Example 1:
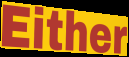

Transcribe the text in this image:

Either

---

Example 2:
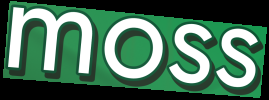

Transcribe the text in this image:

moss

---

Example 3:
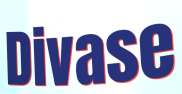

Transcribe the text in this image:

Divase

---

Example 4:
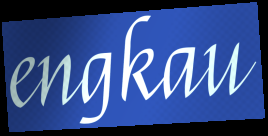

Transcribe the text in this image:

engkau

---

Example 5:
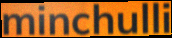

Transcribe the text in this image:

minchulli